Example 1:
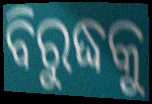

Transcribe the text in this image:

ବିରୁଦ୍ଧକୁ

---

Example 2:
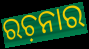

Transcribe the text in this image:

ରଚ଼ନାର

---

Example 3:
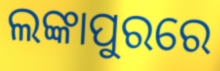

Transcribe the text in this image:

ଲଙ୍କାପୁରରେ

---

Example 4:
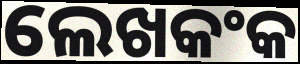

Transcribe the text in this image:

ଲେଖକଂକ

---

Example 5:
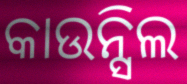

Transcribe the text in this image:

କାଉନ୍ସିଲ